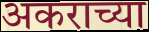
अकराच्या